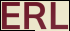
ERL